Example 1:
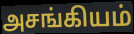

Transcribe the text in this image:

அசங்கியம்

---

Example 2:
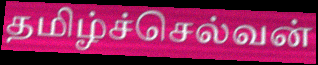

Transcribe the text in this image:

தமிழ்ச்செல்வன்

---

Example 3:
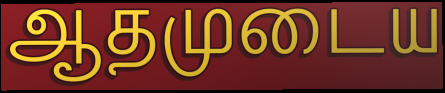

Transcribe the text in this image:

ஆதமுடைய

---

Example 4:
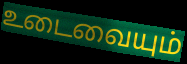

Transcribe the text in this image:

உடைவையும்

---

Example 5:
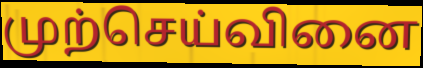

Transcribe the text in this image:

முற்செய்வினை